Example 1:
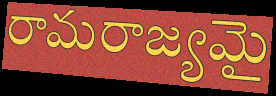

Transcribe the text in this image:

రామరాజ్యమై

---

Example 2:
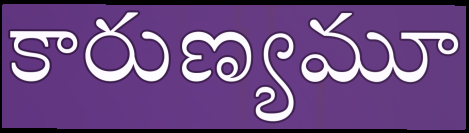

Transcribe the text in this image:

కారుణ్యమూ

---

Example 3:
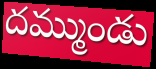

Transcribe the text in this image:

దమ్ముండు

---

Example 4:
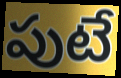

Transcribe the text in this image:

పుటే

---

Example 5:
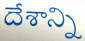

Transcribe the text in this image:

దేశాన్ని